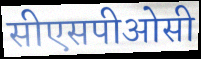
सीएसपीओसी